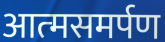
आत्‍मसमर्पण